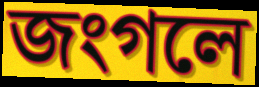
জংগলে